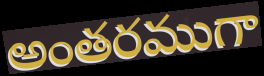
అంతరముగా